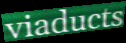
viaducts